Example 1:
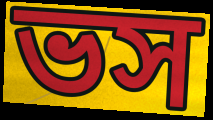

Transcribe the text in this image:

ভস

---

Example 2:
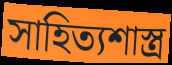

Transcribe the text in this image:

সাহিত্যশাস্ত্র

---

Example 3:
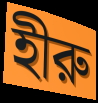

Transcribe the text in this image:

হীরু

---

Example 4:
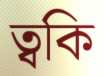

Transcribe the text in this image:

ত্বকি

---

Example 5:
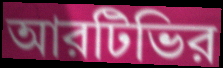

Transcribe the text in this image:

আরটিভির